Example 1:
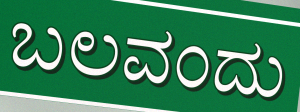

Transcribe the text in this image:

ಬಲವಂದು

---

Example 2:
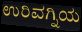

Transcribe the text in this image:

ಉರಿವಗ್ನಿಯ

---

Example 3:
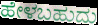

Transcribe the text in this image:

ಹೇಳಬಹುದು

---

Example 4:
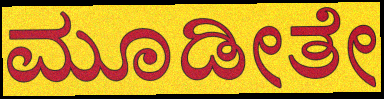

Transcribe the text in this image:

ಮೂಡೀತೇ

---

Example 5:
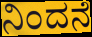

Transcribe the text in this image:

ನಿಂದನೆ